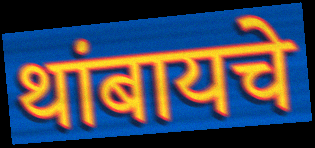
थांबायचे